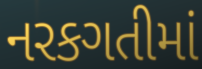
નરકગતીમાં